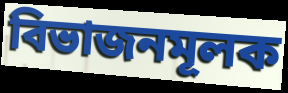
বিভাজনমূলক